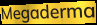
Megaderma